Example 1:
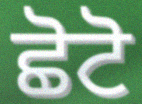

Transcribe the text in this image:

ਛੋਟੋ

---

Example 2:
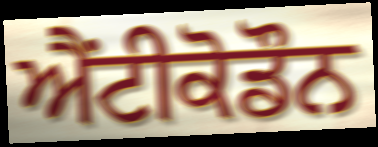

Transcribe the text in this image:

ਐਂਟੀਕੋਡੌਨ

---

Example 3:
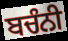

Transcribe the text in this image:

ਬਚੰਨੀ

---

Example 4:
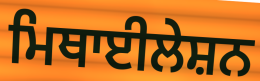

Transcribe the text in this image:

ਮਿਥਾਈਲੇਸ਼ਨ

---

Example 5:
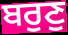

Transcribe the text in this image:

ਬਰੁਣੁ